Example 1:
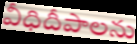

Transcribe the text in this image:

వీధిదీపాలను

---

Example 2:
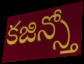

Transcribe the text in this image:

కజిన్స్తో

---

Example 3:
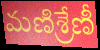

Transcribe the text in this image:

మణిశ్రేణీ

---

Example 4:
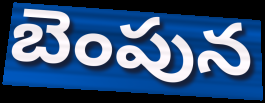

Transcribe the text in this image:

బెంపున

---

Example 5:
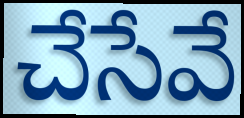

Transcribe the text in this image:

చేసేవే